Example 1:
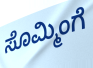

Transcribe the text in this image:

ಸೊಮ್ಮಿಂಗೆ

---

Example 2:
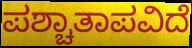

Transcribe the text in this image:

ಪಶ್ಚಾತಾಪವಿದೆ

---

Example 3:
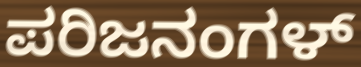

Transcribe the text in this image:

ಪರಿಜನಂಗಳ್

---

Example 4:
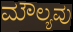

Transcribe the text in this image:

ಮೌಲ್ಯವು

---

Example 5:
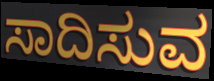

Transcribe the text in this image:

ಸಾದಿಸುವ